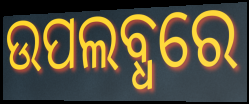
ଉପଲବ୍ଧରେ